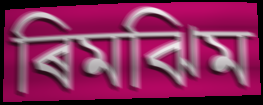
ৰিমঝিম